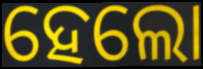
ହେଲୋ